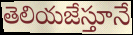
తెలియజేస్తూనే